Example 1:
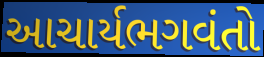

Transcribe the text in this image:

આચાર્યભગવંતો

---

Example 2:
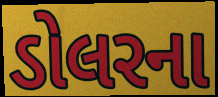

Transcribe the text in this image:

ડોલરના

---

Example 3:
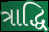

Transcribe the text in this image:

ત્રાદ્ધિ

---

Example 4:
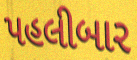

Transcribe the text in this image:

પહલીબાર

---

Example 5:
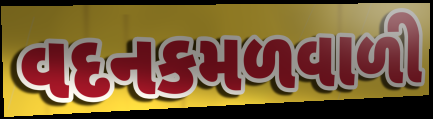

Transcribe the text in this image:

વદનકમળવાળી